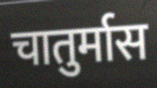
चातुर्मास